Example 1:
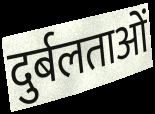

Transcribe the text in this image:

दुर्बलताओं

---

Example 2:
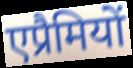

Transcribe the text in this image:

एप्रैमियों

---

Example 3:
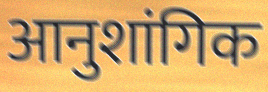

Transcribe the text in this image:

आनुशांगिक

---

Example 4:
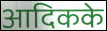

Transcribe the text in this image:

आदिकके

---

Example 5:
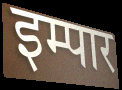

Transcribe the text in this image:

इम्पार